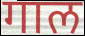
गाल